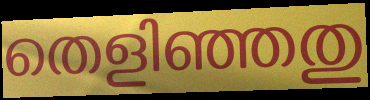
തെളിഞ്ഞതു